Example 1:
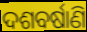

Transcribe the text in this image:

ଦଶବର୍ଷାଣି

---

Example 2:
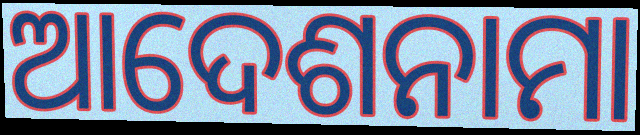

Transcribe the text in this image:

ଆଦେଶନାମା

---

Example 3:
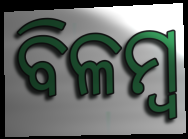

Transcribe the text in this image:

ବିଳମ୍ଵ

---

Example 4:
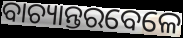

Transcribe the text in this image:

ବାଚ୍ୟାନ୍ତରବେଳେ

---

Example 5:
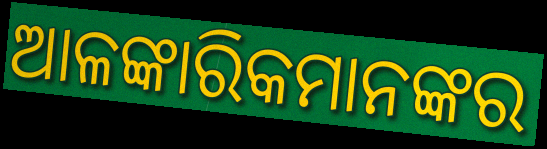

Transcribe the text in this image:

ଆଳଙ୍କାରିକମାନଙ୍କର